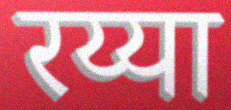
रय्या